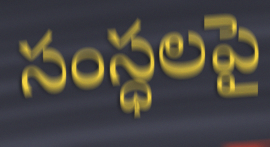
సంస్ధలపై